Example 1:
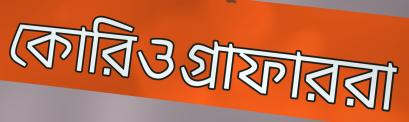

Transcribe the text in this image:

কোরিওগ্রাফাররা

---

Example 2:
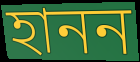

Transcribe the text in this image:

হানন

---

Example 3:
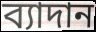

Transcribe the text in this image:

ব্যাদান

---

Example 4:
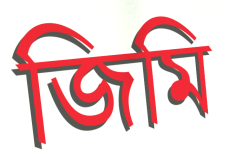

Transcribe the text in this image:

জিমি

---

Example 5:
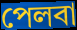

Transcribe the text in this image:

পেলবা